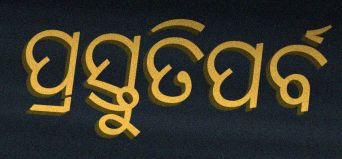
ପ୍ରସ୍ତୁତିପର୍ବ